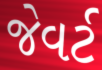
જેવર્ટ